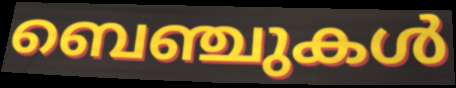
ബെഞ്ചുകൾ